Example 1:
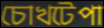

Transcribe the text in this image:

চোখটেপা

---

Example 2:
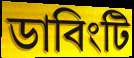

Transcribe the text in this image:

ডাবিংটি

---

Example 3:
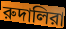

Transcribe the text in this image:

রুদালিরা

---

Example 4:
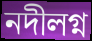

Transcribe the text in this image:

নদীলগ্ন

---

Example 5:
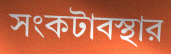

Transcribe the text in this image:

সংকটাবস্থার